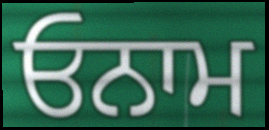
ਓਨਾਮ